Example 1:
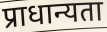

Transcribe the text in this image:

प्राधान्यता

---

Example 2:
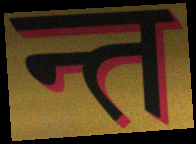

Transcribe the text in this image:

न्त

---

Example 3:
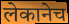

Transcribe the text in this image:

लेकानेच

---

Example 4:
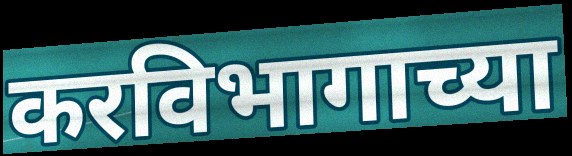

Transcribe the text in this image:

करविभागाच्या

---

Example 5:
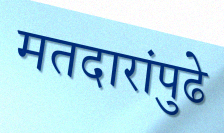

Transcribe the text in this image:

मतदारांपुढे